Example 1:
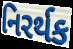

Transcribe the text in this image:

નિરર્થક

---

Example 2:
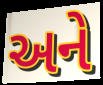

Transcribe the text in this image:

અને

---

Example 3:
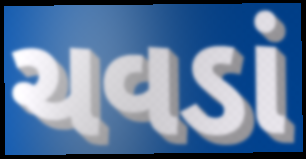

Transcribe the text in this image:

ચવડાં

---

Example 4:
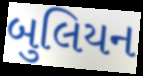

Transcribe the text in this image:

બુલિયન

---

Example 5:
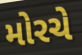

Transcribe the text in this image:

મોરચે